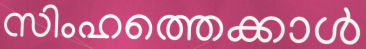
സിംഹത്തെക്കാൾ